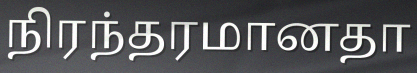
நிரந்தரமானதா